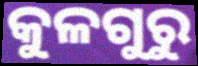
କୁଳଗୁରୁ